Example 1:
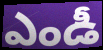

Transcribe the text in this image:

ఎండీ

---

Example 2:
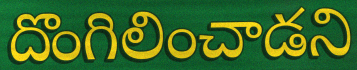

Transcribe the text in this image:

దొంగిలించాడని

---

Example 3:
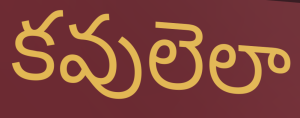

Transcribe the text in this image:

కవులెలా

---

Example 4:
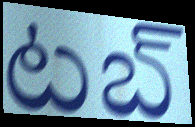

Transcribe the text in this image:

టబ్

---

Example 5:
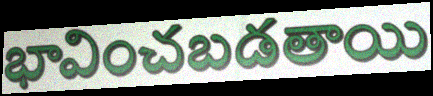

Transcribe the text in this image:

భావించబడతాయి